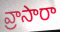
వ్రాసారా